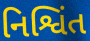
નિશ્વિંત